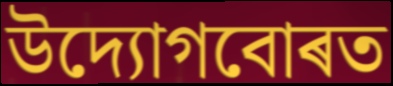
উদ্যোগবোৰত